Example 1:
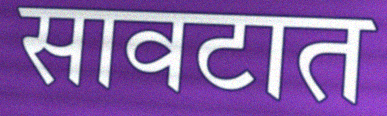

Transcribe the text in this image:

सावटात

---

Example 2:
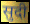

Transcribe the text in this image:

सुदी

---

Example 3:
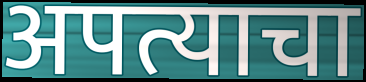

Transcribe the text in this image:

अपत्याचा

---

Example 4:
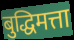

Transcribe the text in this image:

बुद्धिमत्ता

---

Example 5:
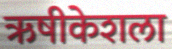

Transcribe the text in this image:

ऋषीकेशला